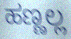
ಹಣ್ಣಲ್ಲ